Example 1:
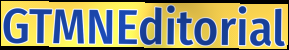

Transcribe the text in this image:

GTMNEditorial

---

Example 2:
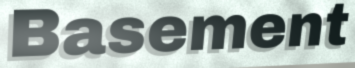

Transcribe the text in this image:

Basement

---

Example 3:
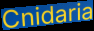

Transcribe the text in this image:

Cnidaria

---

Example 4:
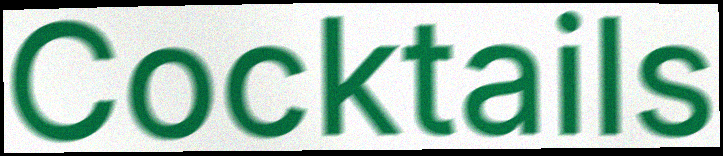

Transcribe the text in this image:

Cocktails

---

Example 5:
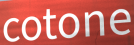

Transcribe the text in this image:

cotone